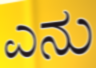
ಎನು